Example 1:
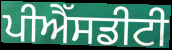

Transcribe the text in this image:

ਪੀਐੱਸਡੀਟੀ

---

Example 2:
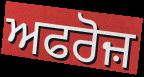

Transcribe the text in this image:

ਅਫਰੋਜ਼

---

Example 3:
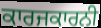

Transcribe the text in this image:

ਕਾਰਜਕਾਰਨੀ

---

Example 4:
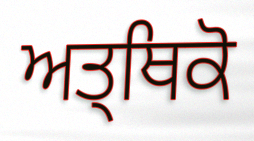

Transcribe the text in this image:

ਅਤ੍ਥਿਕੋ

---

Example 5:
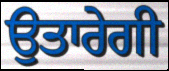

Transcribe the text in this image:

ਉਤਾਰੇਗੀ